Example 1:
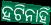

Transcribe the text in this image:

ହଟିନାହିଁ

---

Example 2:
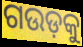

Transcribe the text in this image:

ଗଉଡ଼କୁ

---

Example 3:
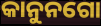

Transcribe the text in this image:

କାନୁନଗୋ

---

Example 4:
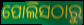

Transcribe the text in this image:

ପୋଲିସଠାରୁ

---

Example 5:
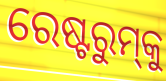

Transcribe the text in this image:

ରେଷ୍ଟରୁମ୍‌କୁ